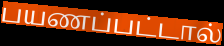
பயணப்பட்டால்